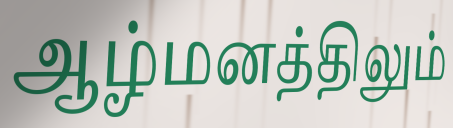
ஆழ்மனத்திலும்